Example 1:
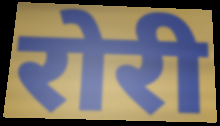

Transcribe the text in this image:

रोरी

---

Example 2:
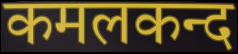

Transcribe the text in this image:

कमलकन्द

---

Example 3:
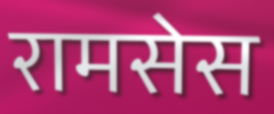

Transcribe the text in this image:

रामसेस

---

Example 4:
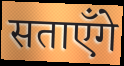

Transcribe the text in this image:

सताएँगे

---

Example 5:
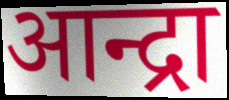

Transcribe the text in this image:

आन्द्रा